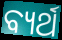
ବ୍ଯର୍ଥ